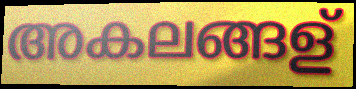
അകലങ്ങള്